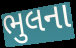
ભુલના